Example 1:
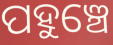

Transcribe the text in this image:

ପହୁଞ୍ଚେ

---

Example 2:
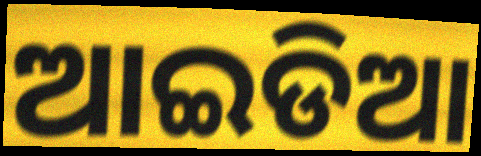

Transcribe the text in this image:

ଆଇଡିଆ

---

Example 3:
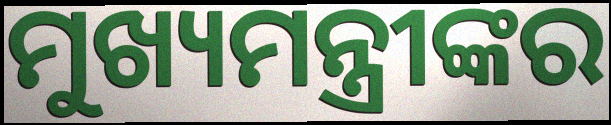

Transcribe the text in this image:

ମୁଖ୍ୟମନ୍ତ୍ରୀଙ୍କର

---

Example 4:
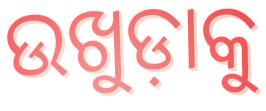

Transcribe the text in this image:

ଉଖୁଡ଼ାକୁ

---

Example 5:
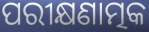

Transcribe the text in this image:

ପରୀକ୍ଷଣାତ୍ମକ